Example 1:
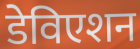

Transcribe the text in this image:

डेविएशन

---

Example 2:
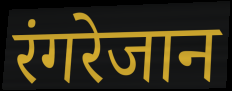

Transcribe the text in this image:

रंगरेजान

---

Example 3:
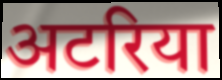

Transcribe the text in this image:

अटरिया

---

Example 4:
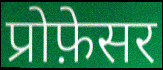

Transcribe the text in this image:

प्रोफ़ेसर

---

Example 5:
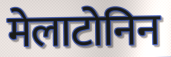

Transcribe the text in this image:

मेलाटोनिन